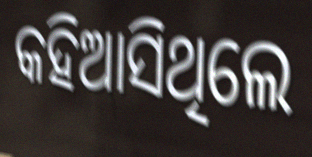
କହିଆସିଥିଲେ